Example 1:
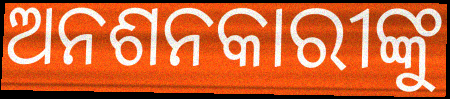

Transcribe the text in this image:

ଅନଶନକାରୀଙ୍କୁ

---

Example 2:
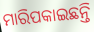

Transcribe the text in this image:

ମାରିପକାଇଛନ୍ତି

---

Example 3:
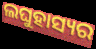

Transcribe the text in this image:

ଲଘୁହାସ୍ୟର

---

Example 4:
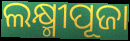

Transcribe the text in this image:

ଲକ୍ଷ୍ମୀପୂଜା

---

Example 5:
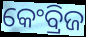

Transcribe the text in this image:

କେଂବ୍ରିଜ